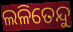
ଲଳିତେନ୍ଦୁ